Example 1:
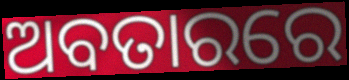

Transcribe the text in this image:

ଅବତାରରେ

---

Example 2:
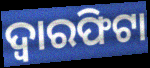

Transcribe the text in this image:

ଦ୍ୱାରଫିଟା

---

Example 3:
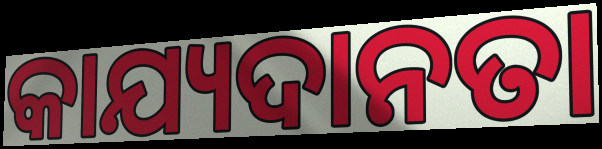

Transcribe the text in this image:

କାଯ୍ୟଦାନତା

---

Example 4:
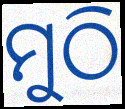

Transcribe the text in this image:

ମୁଠି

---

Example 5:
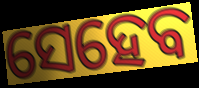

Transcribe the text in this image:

ସେହେବ